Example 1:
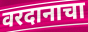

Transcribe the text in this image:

वरदानाचा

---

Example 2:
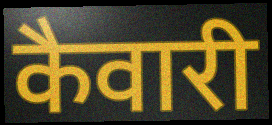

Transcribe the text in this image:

कैवारी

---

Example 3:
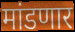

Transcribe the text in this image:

मांडणार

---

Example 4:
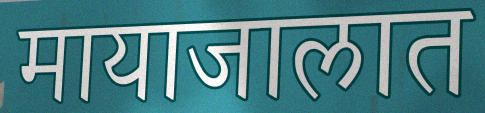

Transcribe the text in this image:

मायाजालात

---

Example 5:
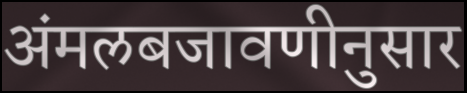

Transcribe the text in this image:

अंमलबजावणीनुसार